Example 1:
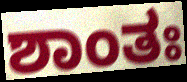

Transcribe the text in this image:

ಶಾಂತಃ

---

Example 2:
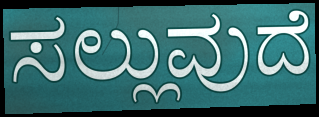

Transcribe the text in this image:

ಸಲ್ಲುವುದೆ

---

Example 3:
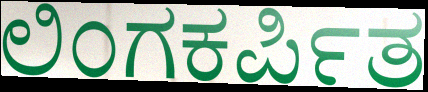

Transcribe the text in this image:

ಲಿಂಗಕರ್ಪಿತ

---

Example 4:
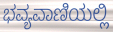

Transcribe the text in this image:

ಭವ್ಯವಾಣಿಯಲ್ಲಿ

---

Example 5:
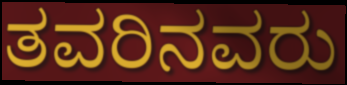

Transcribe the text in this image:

ತವರಿನವರು